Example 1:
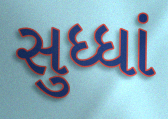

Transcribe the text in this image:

સુધ્ધાં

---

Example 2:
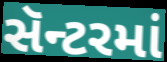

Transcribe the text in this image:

સૅન્ટરમાં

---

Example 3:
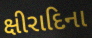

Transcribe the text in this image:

ક્ષીરાદિના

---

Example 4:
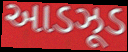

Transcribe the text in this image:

આડઝૂડ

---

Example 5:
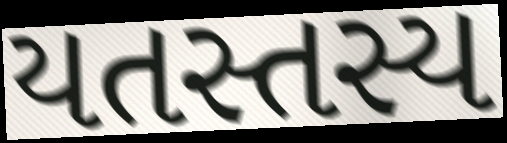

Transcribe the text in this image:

યતસ્તસ્ય